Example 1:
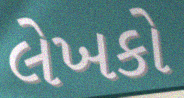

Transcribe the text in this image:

લેખકો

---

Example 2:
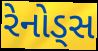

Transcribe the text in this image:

રેનોડ્સ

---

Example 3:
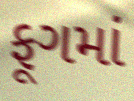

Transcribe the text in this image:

ફૂગમાં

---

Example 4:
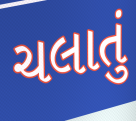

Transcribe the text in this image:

ચલાતું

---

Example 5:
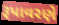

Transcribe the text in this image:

રૂપાવરણે